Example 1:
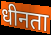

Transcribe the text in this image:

धीनता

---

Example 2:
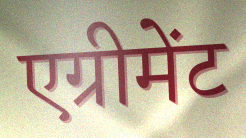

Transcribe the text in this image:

एग्रीमेंट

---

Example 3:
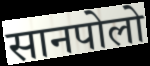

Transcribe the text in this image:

सानपोलो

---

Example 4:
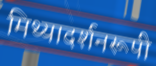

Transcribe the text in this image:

मिथ्यादर्शनरूपी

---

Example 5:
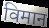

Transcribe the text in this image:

विमान